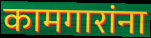
कामगारांना